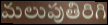
మలుపుతిరిగి